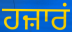
ਹਜ਼ਾਰਂ